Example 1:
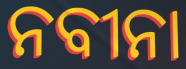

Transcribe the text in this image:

ନବୀନା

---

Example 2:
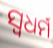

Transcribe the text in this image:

ସ୍ଵଧର୍ମ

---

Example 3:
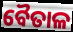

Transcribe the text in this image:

ବୈତାଳ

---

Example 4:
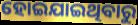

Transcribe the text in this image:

ହୋଇଯାଇଥିବାରୁ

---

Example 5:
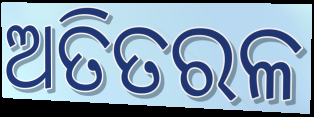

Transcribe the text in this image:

ଅତିତରଳ